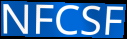
NFCSF